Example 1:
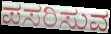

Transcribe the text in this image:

ಪಸರಿಸುವ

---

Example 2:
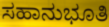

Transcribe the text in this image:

ಸಹಾನುಭೂತಿ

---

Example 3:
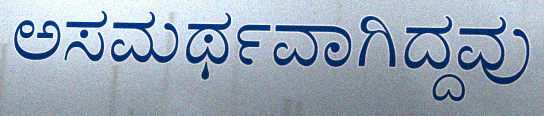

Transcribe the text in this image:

ಅಸಮರ್ಥವಾಗಿದ್ದವು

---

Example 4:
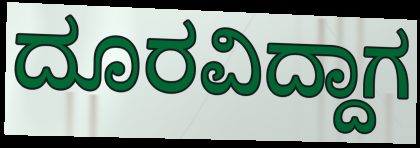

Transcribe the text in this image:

ದೂರವಿದ್ದಾಗ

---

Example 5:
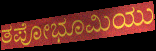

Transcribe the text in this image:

ತಪೋಭೂಮಿಯು